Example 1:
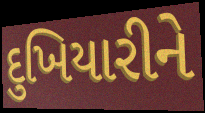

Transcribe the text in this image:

દુખિયારીને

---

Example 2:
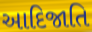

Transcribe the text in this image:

આદિજાતિ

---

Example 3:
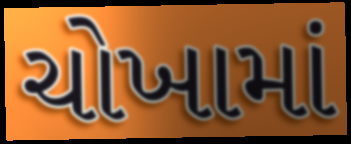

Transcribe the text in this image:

ચોખામાં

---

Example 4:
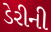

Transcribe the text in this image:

ડેરીની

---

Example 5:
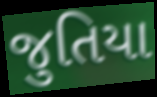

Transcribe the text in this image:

જુતિયા